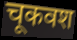
चूकवश